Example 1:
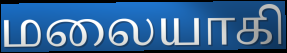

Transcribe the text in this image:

மலையாகி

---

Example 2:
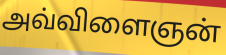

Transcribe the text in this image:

அவ்விளைஞன்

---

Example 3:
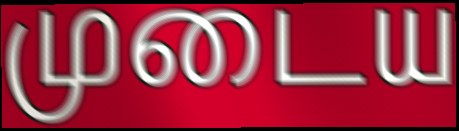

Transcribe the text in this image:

முடைய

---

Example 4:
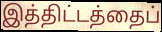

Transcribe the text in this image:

இத்திட்டத்தைப்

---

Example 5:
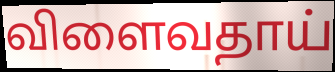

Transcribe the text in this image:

விளைவதாய்